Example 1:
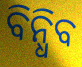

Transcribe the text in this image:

ବିନ୍ଧିବ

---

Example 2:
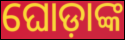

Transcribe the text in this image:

ଘୋଡ଼ାଙ୍କ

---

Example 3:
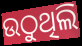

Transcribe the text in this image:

ଉଠୁଥିଲି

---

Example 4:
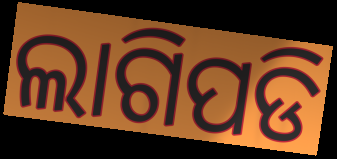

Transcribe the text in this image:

ଲାଗିପଡି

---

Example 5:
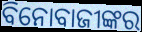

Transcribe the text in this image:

ବିନୋବାଜୀଙ୍କର